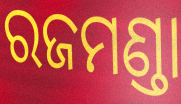
ରଜମଣ୍ଡା